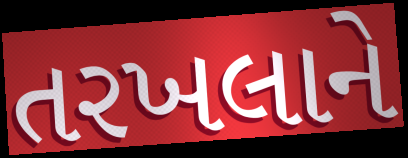
તરખલાને